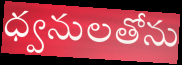
ధ్వనులతోను